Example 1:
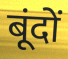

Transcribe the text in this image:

बूंदों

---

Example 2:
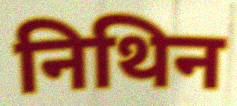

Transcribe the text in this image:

निथिन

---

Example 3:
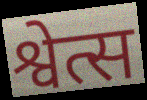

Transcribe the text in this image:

श्वेत्स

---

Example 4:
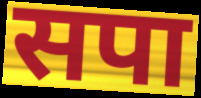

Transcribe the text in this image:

सपा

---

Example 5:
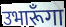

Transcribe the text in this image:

उभारूँगा